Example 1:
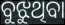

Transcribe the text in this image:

ବୁଝୁଥିବା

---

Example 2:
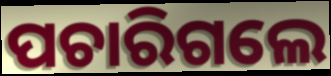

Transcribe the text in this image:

ପଚାରିଗଲେ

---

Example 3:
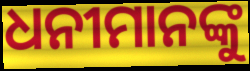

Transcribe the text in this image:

ଧନୀମାନଙ୍କୁ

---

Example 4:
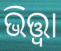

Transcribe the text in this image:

ଭିତ୍ତ୍ୱା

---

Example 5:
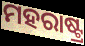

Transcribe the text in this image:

ମହରାଷ୍ଟ୍ର